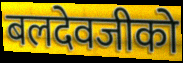
बलदेवजीको